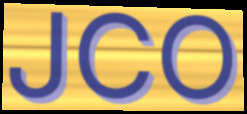
JCO